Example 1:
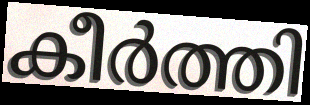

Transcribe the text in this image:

കീർത്തി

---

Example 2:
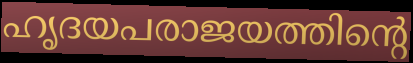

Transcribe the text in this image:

ഹൃദയപരാജയത്തിന്റെ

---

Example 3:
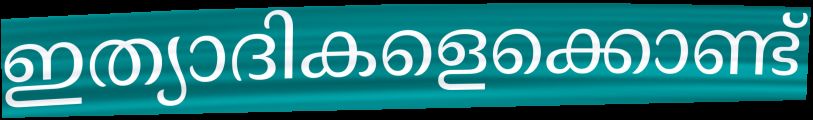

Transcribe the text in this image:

ഇത്യാദികളെക്കൊണ്ട്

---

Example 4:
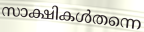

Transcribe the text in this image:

സാക്ഷികൾതന്നെ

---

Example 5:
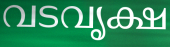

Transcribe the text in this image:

വടവൃക്ഷ